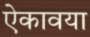
ऐकावया